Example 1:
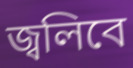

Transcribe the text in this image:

জ্বলিবে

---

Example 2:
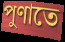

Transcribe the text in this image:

পুণাতে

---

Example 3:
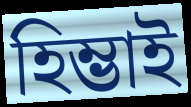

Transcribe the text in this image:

হিম্ভাই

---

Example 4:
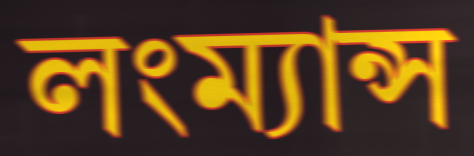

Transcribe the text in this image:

লংম্যান্স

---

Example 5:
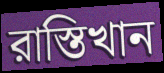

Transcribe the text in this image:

রাস্তিখান